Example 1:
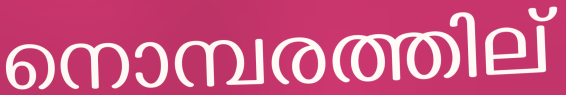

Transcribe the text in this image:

നൊമ്പരത്തില്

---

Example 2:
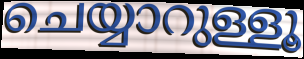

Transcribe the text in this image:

ചെയ്യാറുള്ളൂ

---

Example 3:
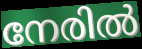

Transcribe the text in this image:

നേരിൽ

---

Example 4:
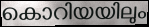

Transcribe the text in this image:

കൊറിയയിലും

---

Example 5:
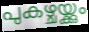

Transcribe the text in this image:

പുകഴ്ചയ്ക്കും